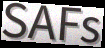
SAFs